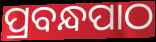
ପ୍ରବନ୍ଧପାଠ